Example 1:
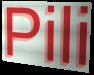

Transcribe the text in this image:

Pili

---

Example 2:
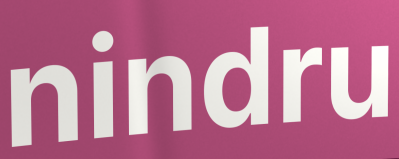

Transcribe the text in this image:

nindru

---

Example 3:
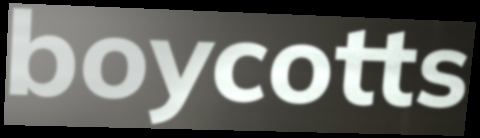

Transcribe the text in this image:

boycotts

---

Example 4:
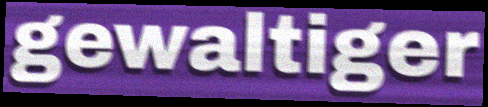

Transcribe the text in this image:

gewaltiger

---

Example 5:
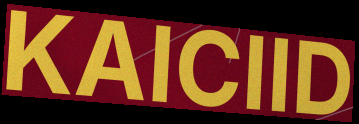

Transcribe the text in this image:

KAICIID